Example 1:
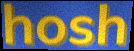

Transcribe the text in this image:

hosh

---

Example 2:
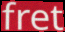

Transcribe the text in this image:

fret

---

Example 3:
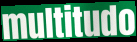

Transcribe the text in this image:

multitudo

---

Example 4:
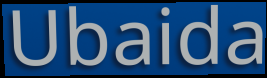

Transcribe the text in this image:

Ubaida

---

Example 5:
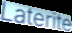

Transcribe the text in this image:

Laterite